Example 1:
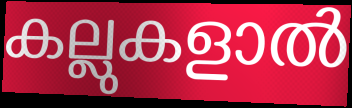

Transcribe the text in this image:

കല്ലുകളാൽ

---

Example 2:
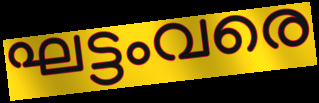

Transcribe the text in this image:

ഘട്ടംവരെ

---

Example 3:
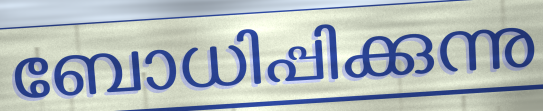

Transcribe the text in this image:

ബോധിപ്പിക്കുന്നു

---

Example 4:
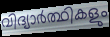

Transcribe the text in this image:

വിദ്യാർത്ഥികളും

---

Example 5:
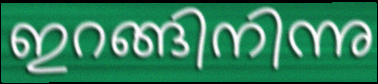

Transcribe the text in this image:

ഇറങ്ങിനിന്നു